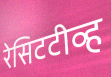
रेसिटटीव्ह